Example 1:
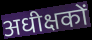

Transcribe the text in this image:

अधीक्षकों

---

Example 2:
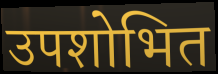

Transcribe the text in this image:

उपशोभित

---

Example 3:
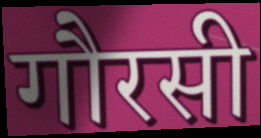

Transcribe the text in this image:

गौरसी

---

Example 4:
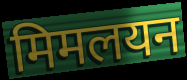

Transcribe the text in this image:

मिमलयन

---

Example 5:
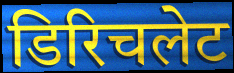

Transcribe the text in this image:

डिरिचलेट